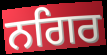
ਨਗਿਰ